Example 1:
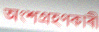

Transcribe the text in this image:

অংশগ্ৰহণকাৰী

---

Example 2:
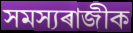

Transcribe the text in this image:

সমস্যৰাজীক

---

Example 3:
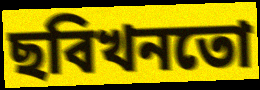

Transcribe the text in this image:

ছবিখনতো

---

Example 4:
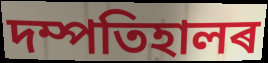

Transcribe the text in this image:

দম্পতিহালৰ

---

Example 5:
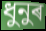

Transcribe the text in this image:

ধুনুৰ